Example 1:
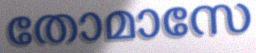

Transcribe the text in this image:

തോമാസേ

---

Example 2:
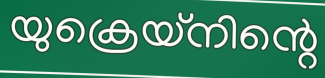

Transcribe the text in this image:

യുക്രെയ്നിന്റെ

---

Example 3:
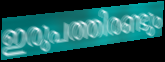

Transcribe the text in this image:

ഇരുപത്തിരണ്ടും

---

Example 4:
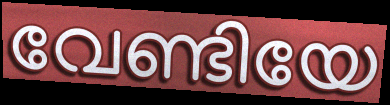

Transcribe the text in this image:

വേണ്ടിയേ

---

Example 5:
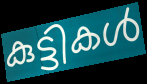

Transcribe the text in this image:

കുട്ടികൾ